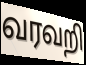
வரவறி